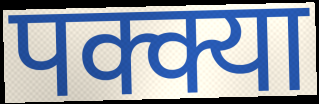
पक्क्या